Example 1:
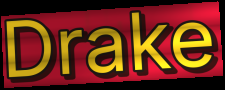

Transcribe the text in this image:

Drake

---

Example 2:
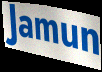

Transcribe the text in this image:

Jamun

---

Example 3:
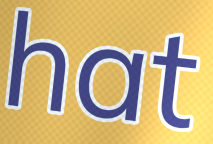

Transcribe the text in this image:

hat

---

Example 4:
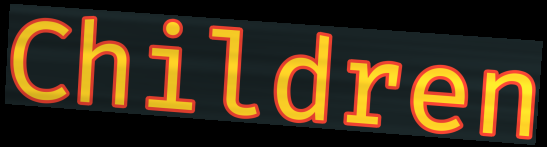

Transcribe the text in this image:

Children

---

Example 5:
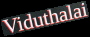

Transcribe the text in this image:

Viduthalai